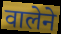
वालेने